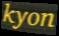
kyon